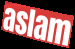
aslam